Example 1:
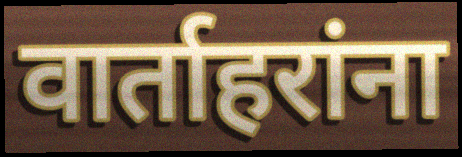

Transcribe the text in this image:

वार्ताहरांना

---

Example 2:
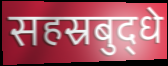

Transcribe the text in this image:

सहस्रबुद्धे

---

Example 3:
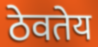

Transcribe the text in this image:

ठेवतेय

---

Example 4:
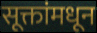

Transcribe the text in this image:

सूक्तांमधून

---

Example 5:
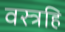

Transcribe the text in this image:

वस्त्रहि